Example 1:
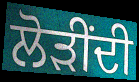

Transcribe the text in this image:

ਲੋੜੀਂਦੀ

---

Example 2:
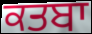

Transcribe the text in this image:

ਕਤਬਾ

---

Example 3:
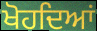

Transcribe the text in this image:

ਖੋਹਦਿਆਂ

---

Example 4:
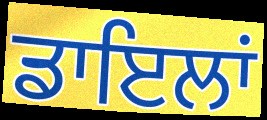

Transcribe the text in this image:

ਡਾਇਲਾਂ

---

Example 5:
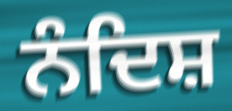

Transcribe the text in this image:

ਨੰਦਿਸ਼